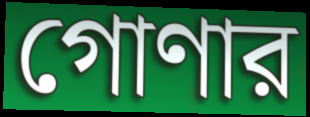
গোণার